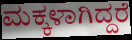
ಮಕ್ಕಳಾಗಿದ್ದರೆ